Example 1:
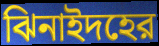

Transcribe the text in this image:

ঝিনাইদহের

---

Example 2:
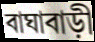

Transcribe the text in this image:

বাঘাবাড়ী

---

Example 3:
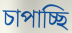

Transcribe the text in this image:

চাপাচ্ছি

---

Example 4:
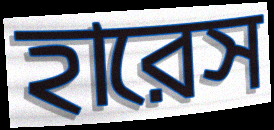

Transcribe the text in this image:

হারেস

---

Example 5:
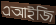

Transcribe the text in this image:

এআইজি